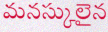
మనస్కులైన